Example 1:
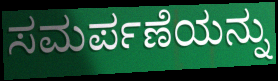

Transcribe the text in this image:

ಸಮರ್ಪಣೆಯನ್ನು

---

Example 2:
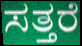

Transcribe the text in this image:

ಸತ್ತರೆ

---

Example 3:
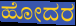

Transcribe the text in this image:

ಹೋದರ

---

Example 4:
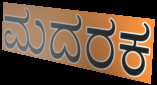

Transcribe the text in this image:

ಮದರಕ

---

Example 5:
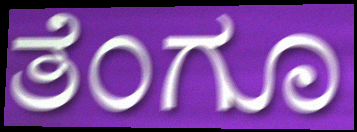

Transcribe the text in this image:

ತೆಂಗೂ